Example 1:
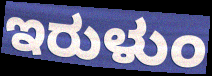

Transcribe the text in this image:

ಇರುಳುಂ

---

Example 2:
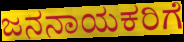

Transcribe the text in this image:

ಜನನಾಯಕರಿಗೆ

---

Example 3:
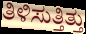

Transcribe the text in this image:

ತಿಳಿಸುತ್ತಿತ್ತು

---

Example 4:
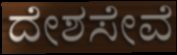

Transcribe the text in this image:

ದೇಶಸೇವೆ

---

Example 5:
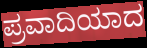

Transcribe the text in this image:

ಪ್ರವಾದಿಯಾದ